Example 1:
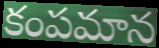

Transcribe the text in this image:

కంపమాన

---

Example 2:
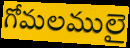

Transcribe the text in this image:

గోమలములై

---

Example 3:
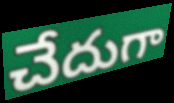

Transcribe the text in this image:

చేదుగా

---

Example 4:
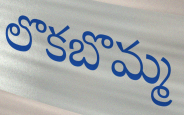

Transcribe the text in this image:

లొకబొమ్మ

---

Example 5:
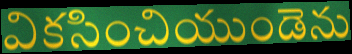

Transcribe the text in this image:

వికసించియుండెను